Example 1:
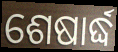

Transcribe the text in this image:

ଶେଷାର୍ଦ୍ଧ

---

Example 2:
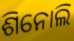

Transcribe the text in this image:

ଶିନୋଲି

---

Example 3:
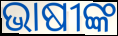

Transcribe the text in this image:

ଭାଷୀଙ୍କ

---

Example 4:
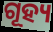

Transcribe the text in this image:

ଗୂହ୍ୟ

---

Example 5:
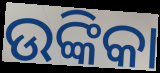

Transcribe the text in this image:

ଉଙ୍କିକା